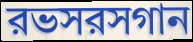
রভসরসগান